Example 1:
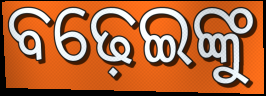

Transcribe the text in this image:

ବଢ଼େଇଙ୍କୁ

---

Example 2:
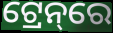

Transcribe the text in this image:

ଟ୍ରେନ୍‌ରେ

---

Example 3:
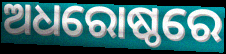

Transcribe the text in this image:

ଅଧରୋଷ୍ଠରେ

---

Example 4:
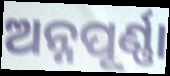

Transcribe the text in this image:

ଅନ୍ନପୂର୍ଣ୍ଣା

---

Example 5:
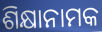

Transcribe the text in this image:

ଶିକ୍ଷାନାମକ